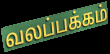
வலப்பக்கம்